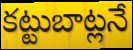
కట్టుబాట్లనే